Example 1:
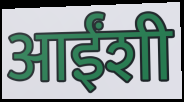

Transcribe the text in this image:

आईंशी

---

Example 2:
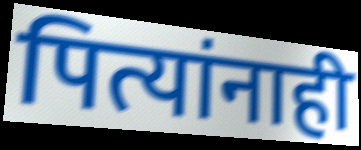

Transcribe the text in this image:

पित्यांनाही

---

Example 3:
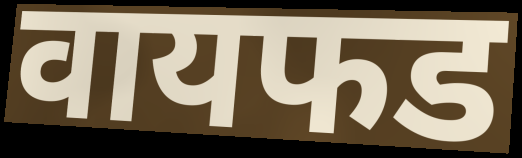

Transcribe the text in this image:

वायफड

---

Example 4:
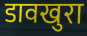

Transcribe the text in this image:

डावखुरा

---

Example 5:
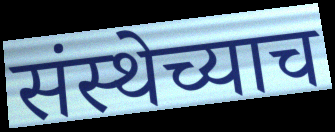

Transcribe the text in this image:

संस्थेच्याच